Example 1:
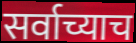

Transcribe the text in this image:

सर्वाच्याच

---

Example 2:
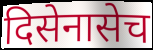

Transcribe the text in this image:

दिसेनासेच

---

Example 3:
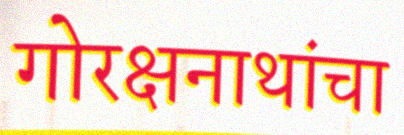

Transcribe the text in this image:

गोरक्षनाथांचा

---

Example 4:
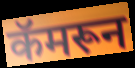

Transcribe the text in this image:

कॅमरून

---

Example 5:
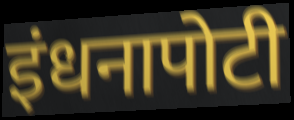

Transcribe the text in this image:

इंधनापोटी